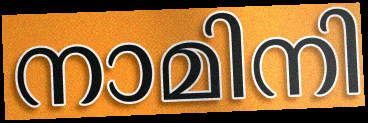
നാമിനി